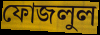
ফোজলুল